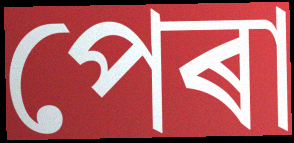
পেৰা